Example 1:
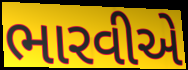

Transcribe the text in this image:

ભારવીએ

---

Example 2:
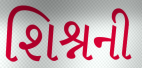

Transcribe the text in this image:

શિશ્નની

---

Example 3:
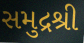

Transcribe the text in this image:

સમુદ્રશ્રી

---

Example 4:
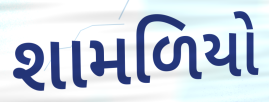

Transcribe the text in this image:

શામળિયો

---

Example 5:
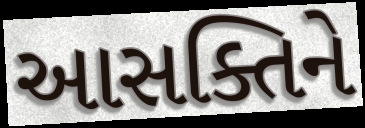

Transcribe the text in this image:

આસક્તિને